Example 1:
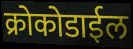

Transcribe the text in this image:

क्रोकोडाईल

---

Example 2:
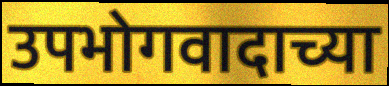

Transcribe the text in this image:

उपभोगवादाच्या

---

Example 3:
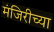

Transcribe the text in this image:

मंजिरीच्या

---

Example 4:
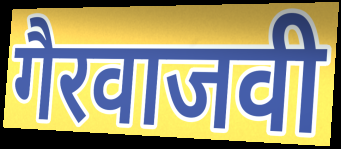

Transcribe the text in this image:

गैरवाजवी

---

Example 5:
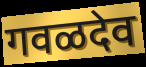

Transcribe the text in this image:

गवळदेव